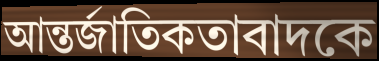
আন্তর্জাতিকতাবাদকে